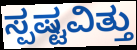
ಸ್ಪಷ್ಟವಿತ್ತು